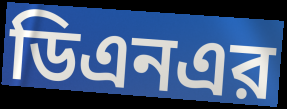
ডিএনএর